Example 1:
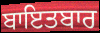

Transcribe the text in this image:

ਬਾਇਤਬਾਰ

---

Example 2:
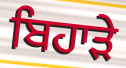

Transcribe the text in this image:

ਬਿਹਾੜੇ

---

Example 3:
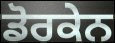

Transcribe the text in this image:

ਡੋਰਕੇਨ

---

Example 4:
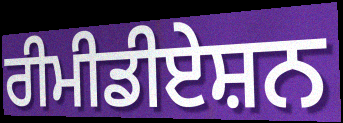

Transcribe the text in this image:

ਰੀਮੀਡੀਏਸ਼ਨ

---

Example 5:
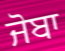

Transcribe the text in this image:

ਜੋਬਾ